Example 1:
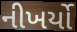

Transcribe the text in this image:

નીખર્યો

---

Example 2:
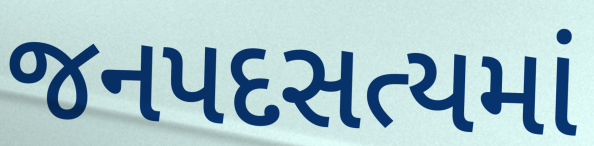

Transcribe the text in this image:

જનપદસત્યમાં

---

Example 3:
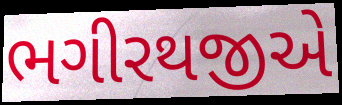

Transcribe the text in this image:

ભગીરથજીએ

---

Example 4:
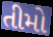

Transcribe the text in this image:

તીમો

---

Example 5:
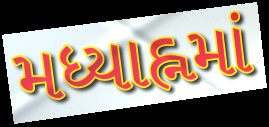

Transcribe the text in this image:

મધ્યાહ્નમાં